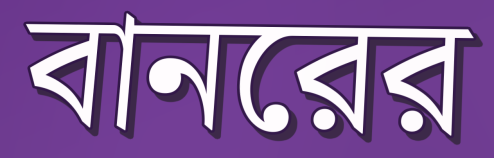
বানরের